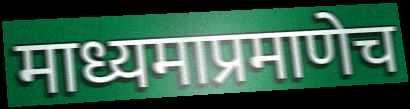
माध्यमाप्रमाणेच